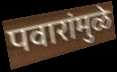
पवारांमुळे